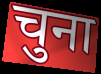
चुना